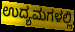
ಉದ್ಯಮಗಳಲ್ಲಿ